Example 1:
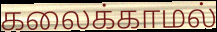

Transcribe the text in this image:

கலைக்காமல்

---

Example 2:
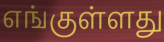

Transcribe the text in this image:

எங்குள்ளது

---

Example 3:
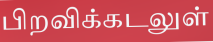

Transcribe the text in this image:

பிறவிக்கடலுள்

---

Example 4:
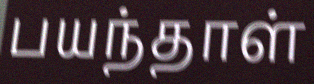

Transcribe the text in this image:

பயந்தாள்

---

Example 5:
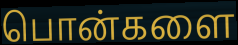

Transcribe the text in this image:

பொன்களை